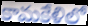
కామకేళిలో